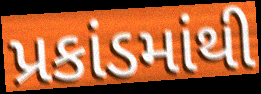
પ્રકાંડમાંથી